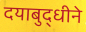
दयाबुद्धीने